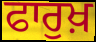
ਫਾਰੁਖ਼